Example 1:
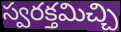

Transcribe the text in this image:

స్వరక్తమిచ్చి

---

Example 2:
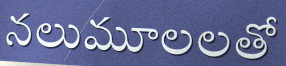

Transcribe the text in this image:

నలుమూలలతో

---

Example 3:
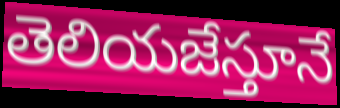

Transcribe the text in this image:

తెలియజేస్తూనే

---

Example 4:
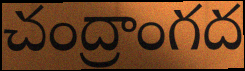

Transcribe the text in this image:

చంద్రాంగద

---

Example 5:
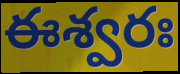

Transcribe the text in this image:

ఈశ్వరః